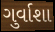
ગુર્વાશા